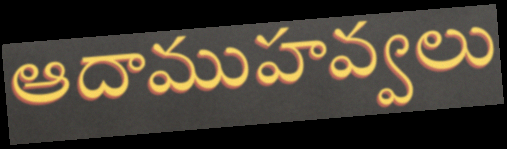
ఆదాముహవ్వలు